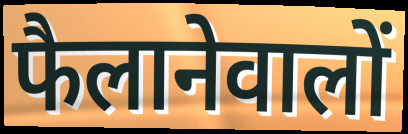
फैलानेवालों